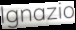
Ignazio